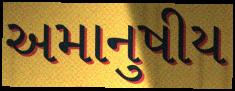
અમાનુષીય